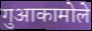
गुआकामोले